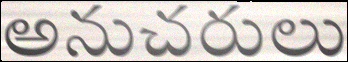
అనుచరులు